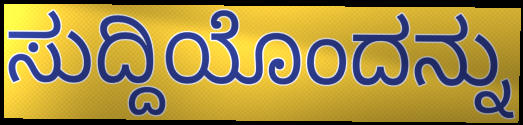
ಸುದ್ದಿಯೊಂದನ್ನು